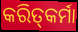
କରିତ୍‍କର୍ମା